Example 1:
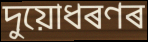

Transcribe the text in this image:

দুয়োধৰণৰ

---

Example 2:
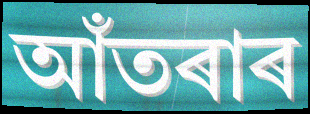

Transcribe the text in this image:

আঁতৰাৰ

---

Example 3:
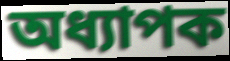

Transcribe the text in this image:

অধ্যাপক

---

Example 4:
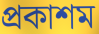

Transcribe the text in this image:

প্ৰকাশম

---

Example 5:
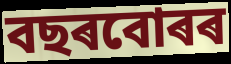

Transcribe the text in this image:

বছৰবোৰৰ